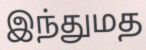
இந்துமத